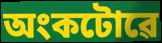
অংকটোৱে